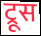
ट्रूस